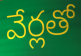
వేర్లతో